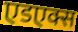
एडएक्स